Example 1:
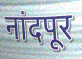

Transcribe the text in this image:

नांदपूर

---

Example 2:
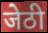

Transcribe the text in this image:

जेठी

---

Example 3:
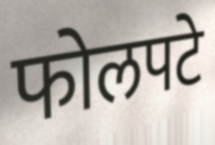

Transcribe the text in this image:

फोलपटे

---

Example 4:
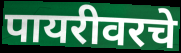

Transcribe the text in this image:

पायरीवरचे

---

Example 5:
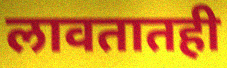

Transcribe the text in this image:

लावतातही